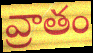
వ్రాతం